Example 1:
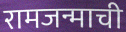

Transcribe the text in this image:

रामजन्माची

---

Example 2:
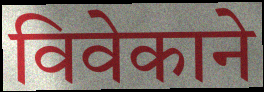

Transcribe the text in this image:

विवेकाने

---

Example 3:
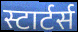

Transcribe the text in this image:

स्टार्टर्स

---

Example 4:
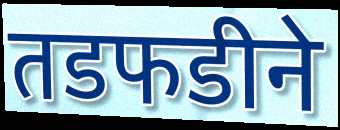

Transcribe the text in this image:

तडफडीने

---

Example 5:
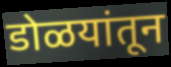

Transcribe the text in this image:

डोळयांतून